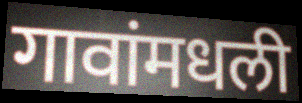
गावांमधली